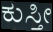
ಕುಸ್ತೀ